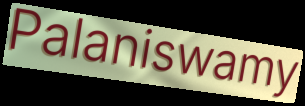
Palaniswamy